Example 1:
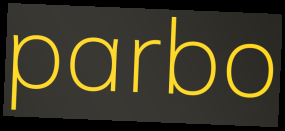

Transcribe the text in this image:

parbo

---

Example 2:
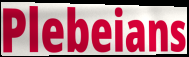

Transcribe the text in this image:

Plebeians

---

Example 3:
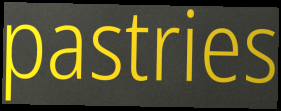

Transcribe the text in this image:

pastries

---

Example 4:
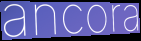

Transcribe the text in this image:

ancora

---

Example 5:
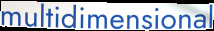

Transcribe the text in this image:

multidimensional